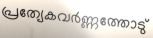
പ്രത്യേകവർണ്ണത്തോടു്